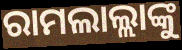
ରାମଲାଲ୍ଲାଙ୍କୁ